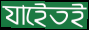
যাইেতই